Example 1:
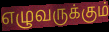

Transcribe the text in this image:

எழுவருக்கும்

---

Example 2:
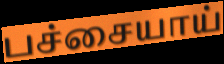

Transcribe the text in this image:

பச்சையாய்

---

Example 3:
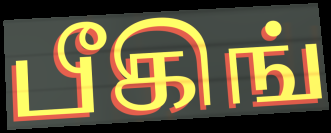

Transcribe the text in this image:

பீகிங்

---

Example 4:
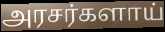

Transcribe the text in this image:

அரசர்களாய்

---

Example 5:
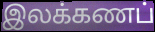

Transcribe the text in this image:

இலக்கணப்